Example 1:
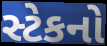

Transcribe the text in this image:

સ્ટેકનો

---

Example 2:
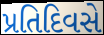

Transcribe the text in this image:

પ્રતિદિવસે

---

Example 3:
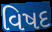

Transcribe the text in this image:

વિષદ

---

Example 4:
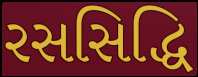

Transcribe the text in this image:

રસસિદ્ધિ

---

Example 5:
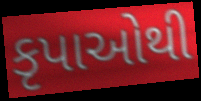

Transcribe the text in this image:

કૃપાઓથી